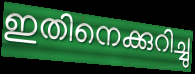
ഇതിനെക്കുറിച്ചു